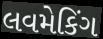
લવમેકિંગ